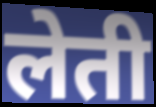
लेती